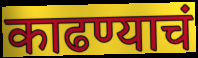
काढण्याचं